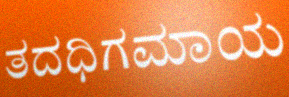
ತದಧಿಗಮಾಯ